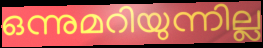
ഒന്നുമറിയുന്നില്ല